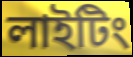
লাইটিং